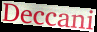
Deccani